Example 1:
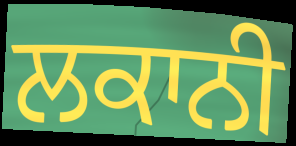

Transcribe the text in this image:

ਲਕਾਨੀ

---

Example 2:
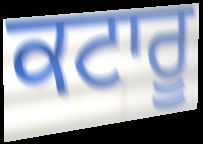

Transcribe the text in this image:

ਕਟਾਰੂ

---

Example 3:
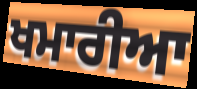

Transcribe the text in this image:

ਖਮਾਰੀਆ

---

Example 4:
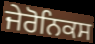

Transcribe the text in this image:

ਜੇਰੋਨਿਕਸ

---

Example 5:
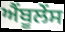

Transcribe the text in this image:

ਐਂਬੂਲੇਂਸ